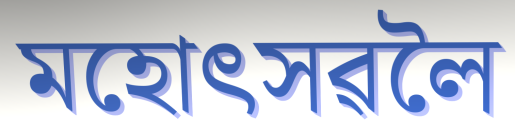
মহোৎসৱলৈ